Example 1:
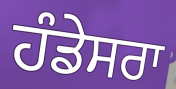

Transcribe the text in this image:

ਹੰਡੇਸਰਾ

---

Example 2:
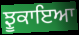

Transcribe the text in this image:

ਝੂਕਾਇਆ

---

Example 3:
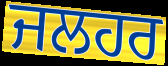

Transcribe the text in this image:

ਜਲਹਰ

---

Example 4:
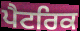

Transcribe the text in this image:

ਪੈਟਰਿਕ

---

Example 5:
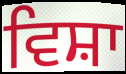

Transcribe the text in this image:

ਵਿਸ਼ਾ